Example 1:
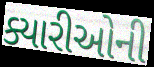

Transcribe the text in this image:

ક્યારીઓની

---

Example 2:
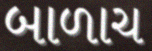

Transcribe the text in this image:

બાળાચ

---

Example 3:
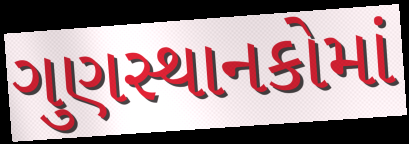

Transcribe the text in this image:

ગુણસ્થાનકોમાં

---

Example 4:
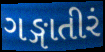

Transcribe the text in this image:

ગઙ્ગાતીરં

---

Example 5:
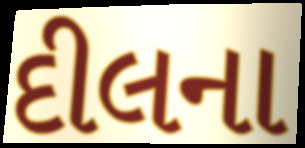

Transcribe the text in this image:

દીલના